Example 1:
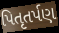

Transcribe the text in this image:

પિતૃતર્પણ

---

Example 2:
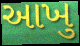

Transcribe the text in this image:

આખુ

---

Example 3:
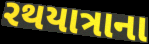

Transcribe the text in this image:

રથયાત્રાના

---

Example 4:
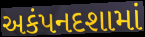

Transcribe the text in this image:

અકંપનદશામાં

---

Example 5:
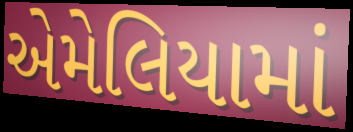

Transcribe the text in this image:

એમેલિયામાં